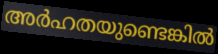
അർഹതയുണ്ടെങ്കിൽ